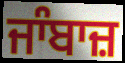
ਜਾੰਬਾਜ਼